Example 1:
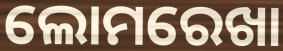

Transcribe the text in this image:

ଲୋମରେଖା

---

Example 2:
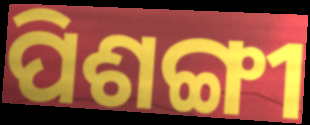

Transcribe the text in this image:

ପିଶଙ୍ଗୀ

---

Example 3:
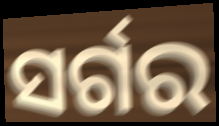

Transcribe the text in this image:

ସର୍ଗର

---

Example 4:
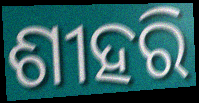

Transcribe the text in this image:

ଶୀହରି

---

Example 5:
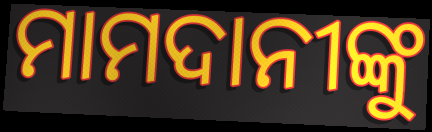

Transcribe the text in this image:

ମାମଦାନୀଙ୍କୁ